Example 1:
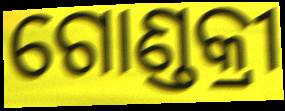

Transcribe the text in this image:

ଗୋଣ୍ଡକ୍ରୀ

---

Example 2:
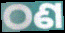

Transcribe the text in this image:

ଠଣ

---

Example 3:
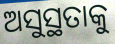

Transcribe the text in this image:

ଅସୁସ୍ଥତାକୁ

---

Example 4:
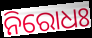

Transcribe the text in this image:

ନିରୋଧଃ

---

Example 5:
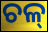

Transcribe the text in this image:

ଚଳ୍